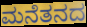
ಮನೆತನದ